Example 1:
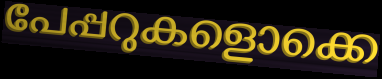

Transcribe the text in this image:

പേപ്പറുകളൊക്കെ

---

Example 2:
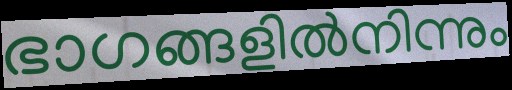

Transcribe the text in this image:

ഭാഗങ്ങളിൽനിന്നും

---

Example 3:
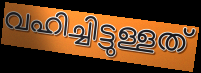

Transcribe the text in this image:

വഹിച്ചിട്ടുള്ളത്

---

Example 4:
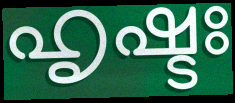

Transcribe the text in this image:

ഹൃഷ്ടഃ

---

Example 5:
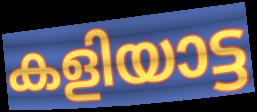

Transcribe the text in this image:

കളിയാട്ട